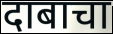
दाबाचा